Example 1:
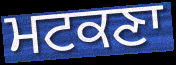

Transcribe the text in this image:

ਮਟਕਣਾ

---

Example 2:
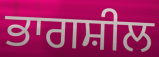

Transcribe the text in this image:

ਭਾਗਸ਼ੀਲ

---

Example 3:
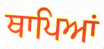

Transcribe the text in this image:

ਥਾਪਿਆਂ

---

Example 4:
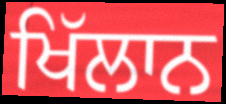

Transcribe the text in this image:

ਖਿੱਲਾਨ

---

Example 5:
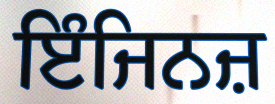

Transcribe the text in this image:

ਇੰਜਿਨਜ਼